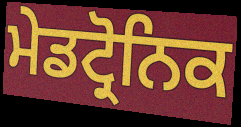
ਮੇਡਟ੍ਰੋਨਿਕ